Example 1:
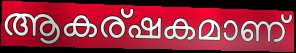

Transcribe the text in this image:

ആകര്ഷകമാണ്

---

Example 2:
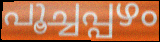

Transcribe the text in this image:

പൂച്ചപ്പഴം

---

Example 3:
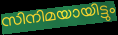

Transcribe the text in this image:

സിനിമയായിട്ടും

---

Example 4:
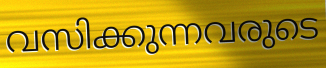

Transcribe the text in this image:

വസിക്കുന്നവരുടെ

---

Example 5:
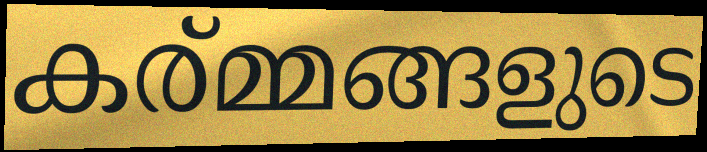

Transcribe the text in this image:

കര്മ്മങ്ങളുടെ